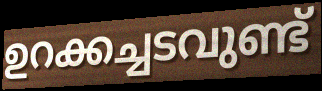
ഉറക്കച്ചടവുണ്ട്